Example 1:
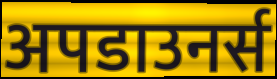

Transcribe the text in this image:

अपडाउनर्स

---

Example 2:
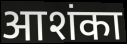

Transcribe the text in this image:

आशंका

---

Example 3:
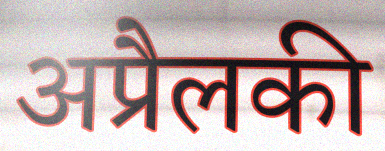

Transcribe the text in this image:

अप्रैलकी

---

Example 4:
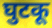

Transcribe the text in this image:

घुटकू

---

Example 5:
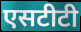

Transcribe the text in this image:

एसटीटी